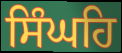
ਸਿੰਘਹਿ